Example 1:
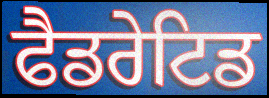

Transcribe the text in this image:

ਫੈਡਰੇਟਿਡ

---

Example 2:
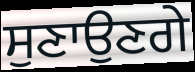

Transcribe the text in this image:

ਸੁਣਾਉਣਗੇ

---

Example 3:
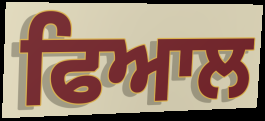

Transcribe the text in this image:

ਫਿਆਲ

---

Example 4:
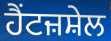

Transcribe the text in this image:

ਹੈਂਟਜ਼ਸ਼ੇਲ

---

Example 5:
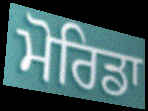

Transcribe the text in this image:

ਮੋਰਿਡਾ